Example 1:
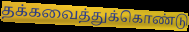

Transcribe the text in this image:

தக்கவைத்துக்கொண்டு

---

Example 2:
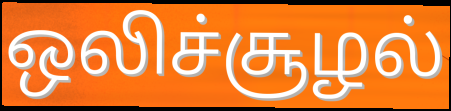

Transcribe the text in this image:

ஒலிச்சூழல்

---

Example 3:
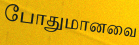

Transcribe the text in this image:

போதுமானவை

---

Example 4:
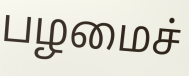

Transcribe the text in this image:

பழமைச்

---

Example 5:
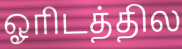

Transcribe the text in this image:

ஓரிடத்தில